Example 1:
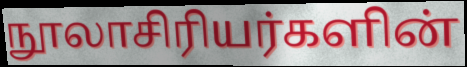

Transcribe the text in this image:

நூலாசிரியர்களின்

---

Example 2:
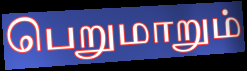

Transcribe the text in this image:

பெறுமாறும்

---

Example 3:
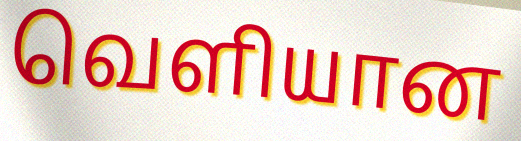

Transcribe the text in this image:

வெளியான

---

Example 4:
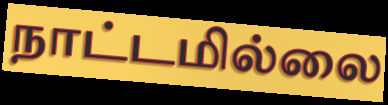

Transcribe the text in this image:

நாட்டமில்லை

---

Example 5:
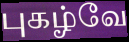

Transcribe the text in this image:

புகழ்வே